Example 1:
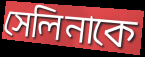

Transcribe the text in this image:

সেলিনাকে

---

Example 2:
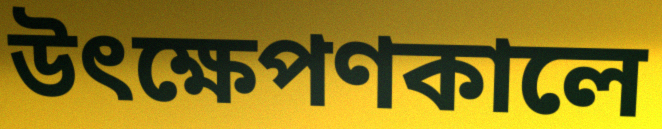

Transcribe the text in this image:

উৎক্ষেপণকালে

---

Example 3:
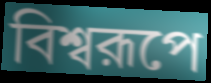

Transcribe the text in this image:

বিশ্বরূপে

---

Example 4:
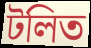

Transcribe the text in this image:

টলিত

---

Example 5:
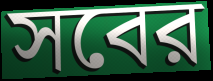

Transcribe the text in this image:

সবের